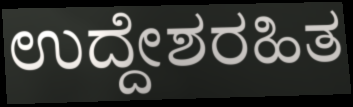
ಉದ್ದೇಶರಹಿತ